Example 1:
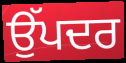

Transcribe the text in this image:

ਉੱਪਦਰ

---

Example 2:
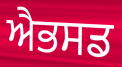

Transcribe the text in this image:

ਐਭਸਡ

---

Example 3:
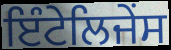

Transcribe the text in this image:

ਇੰਟੇਲਿਜੇਂਸ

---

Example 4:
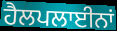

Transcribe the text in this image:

ਹੈਲਪਲਾਈਨਾਂ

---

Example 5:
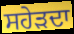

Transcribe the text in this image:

ਸਹੇੜਦਾ